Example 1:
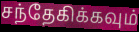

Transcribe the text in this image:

சந்தேகிக்கவும்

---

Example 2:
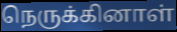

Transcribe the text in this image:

நெருக்கினாள்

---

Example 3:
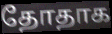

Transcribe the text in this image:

தோதாக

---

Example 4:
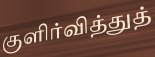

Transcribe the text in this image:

குளிர்வித்துத்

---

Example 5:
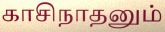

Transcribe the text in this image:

காசிநாதனும்